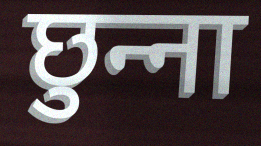
छुन्ना